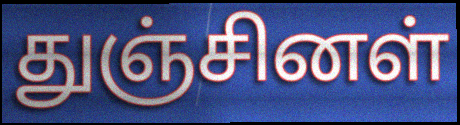
துஞ்சினள்